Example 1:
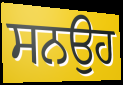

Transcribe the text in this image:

ਸਨਉਹ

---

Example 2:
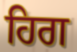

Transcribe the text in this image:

ਹਿਗ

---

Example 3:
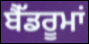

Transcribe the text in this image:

ਬੈੱਡਰੂਮਾਂ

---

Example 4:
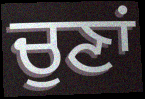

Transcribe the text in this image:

ਚੁਣਾਂ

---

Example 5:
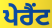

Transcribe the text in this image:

ਪੇਰੈਂਟ